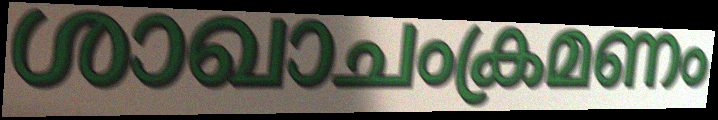
ശാഖാചംക്രമണം